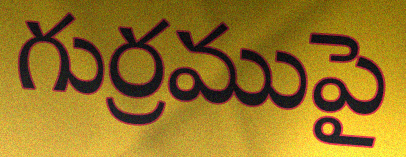
గుర్రముపై